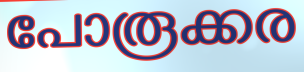
പോരൂക്കര